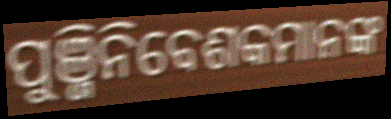
ପୁଞ୍ଜିନିବେଶକମାନଙ୍କ